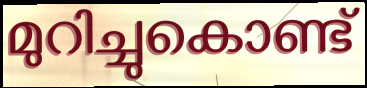
മുറിച്ചുകൊണ്ട്